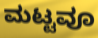
ಮಟ್ಟವೂ